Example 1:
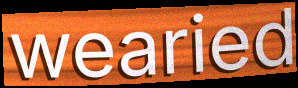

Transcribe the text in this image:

wearied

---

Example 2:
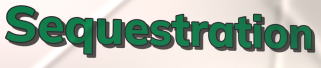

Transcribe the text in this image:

Sequestration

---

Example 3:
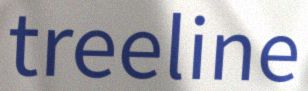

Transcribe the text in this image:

treeline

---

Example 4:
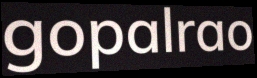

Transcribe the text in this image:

gopalrao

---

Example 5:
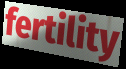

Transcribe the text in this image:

fertility